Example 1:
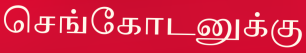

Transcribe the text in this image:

செங்கோடனுக்கு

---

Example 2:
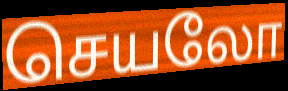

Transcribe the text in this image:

செயலோ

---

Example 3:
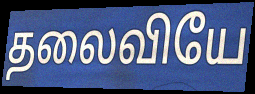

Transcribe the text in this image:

தலைவியே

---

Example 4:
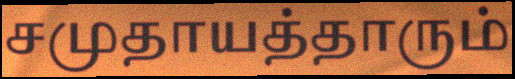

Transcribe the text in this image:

சமுதாயத்தாரும்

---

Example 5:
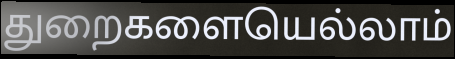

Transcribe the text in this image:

துறைகளையெல்லாம்